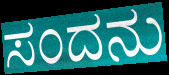
ಸಂದನು